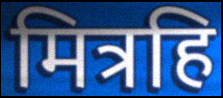
मित्रहि